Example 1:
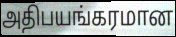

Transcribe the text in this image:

அதிபயங்கரமான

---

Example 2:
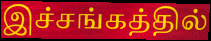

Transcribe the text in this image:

இச்சங்கத்தில்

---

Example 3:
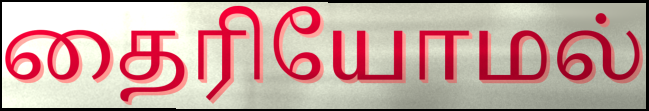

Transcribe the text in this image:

தைரியோமல்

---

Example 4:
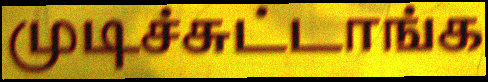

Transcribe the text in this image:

முடிச்சுட்டாங்க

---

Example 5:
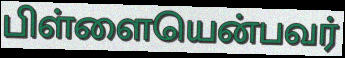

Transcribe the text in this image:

பிள்ளையென்பவர்